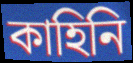
কাহিনি